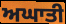
ਅਘਾਤੀ